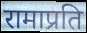
रामाप्रति